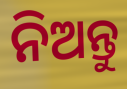
ନିଅନ୍ତୁ